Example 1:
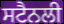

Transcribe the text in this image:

ਸਟੈਨਲੀ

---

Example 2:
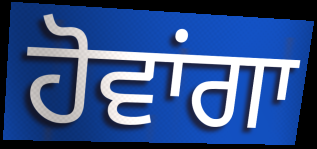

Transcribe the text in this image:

ਹੋਵਾਂਗਾ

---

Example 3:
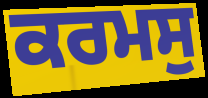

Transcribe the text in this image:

ਕਰਮਸੁ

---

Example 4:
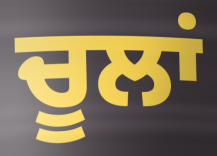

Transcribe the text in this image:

ਚੂਲਾਂ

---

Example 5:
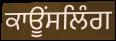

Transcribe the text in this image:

ਕਾਊਂਸਲਿੰਗ